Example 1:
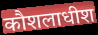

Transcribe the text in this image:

कौशलाधीश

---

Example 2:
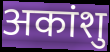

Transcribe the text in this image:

अकांशु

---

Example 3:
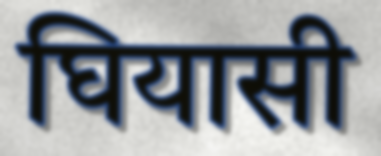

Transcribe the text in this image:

घियासी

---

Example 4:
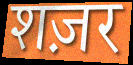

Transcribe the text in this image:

शज़र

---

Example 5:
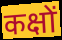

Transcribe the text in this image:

कक्षों